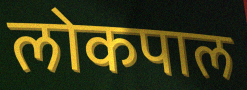
लोकपाल